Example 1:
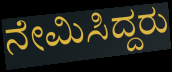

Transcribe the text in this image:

ನೇಮಿಸಿದ್ದರು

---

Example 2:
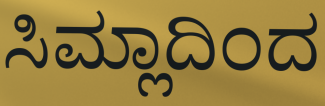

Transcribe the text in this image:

ಸಿಮ್ಲಾದಿಂದ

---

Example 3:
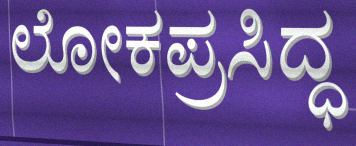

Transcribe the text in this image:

ಲೋಕಪ್ರಸಿದ್ಧ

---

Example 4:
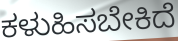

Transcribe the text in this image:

ಕಳುಹಿಸಬೇಕಿದೆ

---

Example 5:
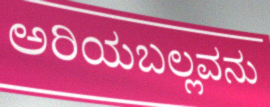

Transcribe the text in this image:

ಅರಿಯಬಲ್ಲವನು